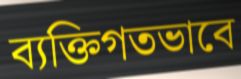
ব্যক্তিগতভাবে